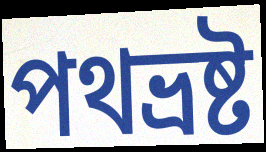
পথভ্ৰষ্ট